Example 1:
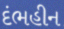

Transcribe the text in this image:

દંભહીન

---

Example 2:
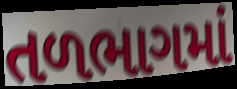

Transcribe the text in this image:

તળભાગમાં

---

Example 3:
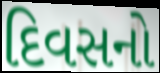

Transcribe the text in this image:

દિવસનો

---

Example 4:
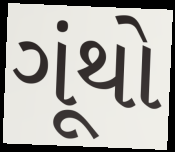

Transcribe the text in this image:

ગૂંથો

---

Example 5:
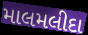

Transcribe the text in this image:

માલમલીદા